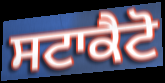
ਸਟਾਕੈਟੋ